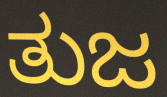
ತುಜ